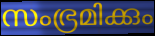
സംഭ്രമിക്കും